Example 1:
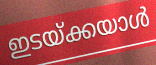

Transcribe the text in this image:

ഇടയ്ക്കയാൾ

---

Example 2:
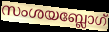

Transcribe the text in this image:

സംശയബ്ലോഗ്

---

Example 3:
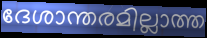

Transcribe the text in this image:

ദേശാന്തരമില്ലാത്ത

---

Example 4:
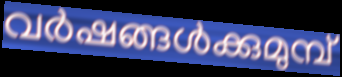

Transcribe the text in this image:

വർഷങ്ങൾക്കുമുമ്പ്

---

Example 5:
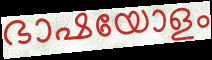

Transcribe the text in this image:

ഭാഷയോളം